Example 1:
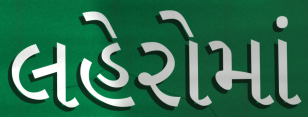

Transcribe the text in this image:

લહેરોમાં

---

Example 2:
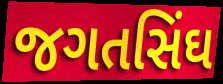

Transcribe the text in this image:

જગતસિંઘ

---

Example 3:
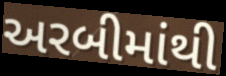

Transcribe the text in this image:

અરબીમાંથી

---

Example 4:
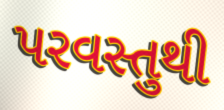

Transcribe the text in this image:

પરવસ્તુથી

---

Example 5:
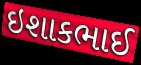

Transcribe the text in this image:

ઇશાકભાઈ